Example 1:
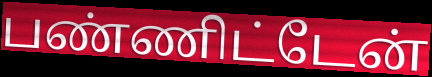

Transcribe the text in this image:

பண்ணிட்டேன்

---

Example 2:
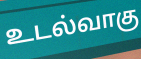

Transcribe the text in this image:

உடல்வாகு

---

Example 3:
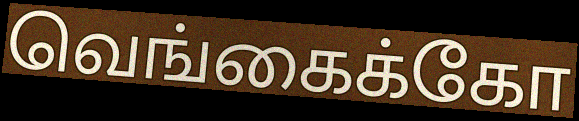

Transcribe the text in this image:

வெங்கைக்கோ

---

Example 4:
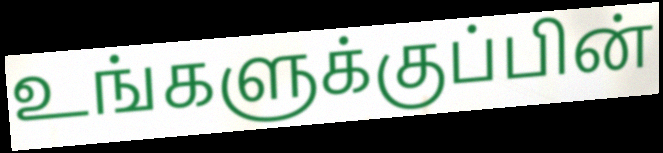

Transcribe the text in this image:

உங்களுக்குப்பின்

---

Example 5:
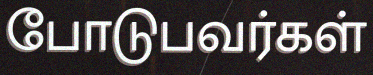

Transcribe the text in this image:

போடுபவர்கள்